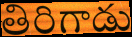
తిరిగాడు